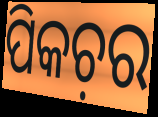
ପିକଚ଼ର